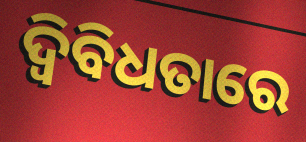
ଦ୍ୱିବିଧତାରେ